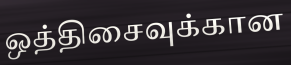
ஒத்திசைவுக்கான